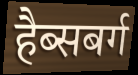
हैब्सबर्ग